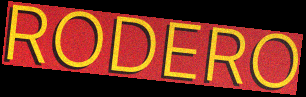
RODERO